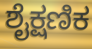
ಶೈಕ್ಷಣಿಕ